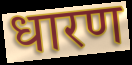
धारण